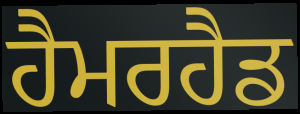
ਹੈਮਰਹੈਡ